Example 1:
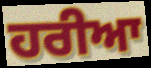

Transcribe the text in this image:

ਹਰੀਆ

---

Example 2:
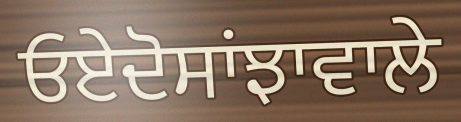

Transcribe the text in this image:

ਓਏਦੋਸਾਂਝਾਵਾਲੇ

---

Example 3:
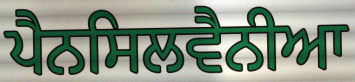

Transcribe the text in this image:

ਪੈਨਸਿਲਵੈਨੀਆ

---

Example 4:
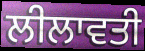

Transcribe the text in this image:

ਲੀਲਾਵਤੀ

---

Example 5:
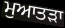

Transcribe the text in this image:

ਮੁਆਤੜਾ